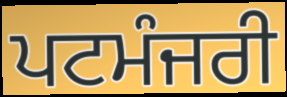
ਪਟਮੰਜਰੀ